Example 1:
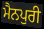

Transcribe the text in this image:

ਮੈਨਪੁਰੀ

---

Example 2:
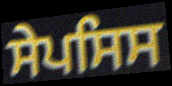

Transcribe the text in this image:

ਸੇਪਸਿਸ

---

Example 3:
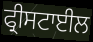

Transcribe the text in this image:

ਫ੍ਰੀਸਟਾਈਲ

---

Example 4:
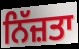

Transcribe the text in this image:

ਨਿੱਜ਼ਤਾ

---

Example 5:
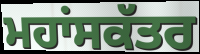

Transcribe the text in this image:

ਮਹਾਂਸਕੱਤਰ